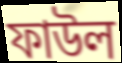
ফাউল